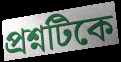
প্রশ্নটিকে